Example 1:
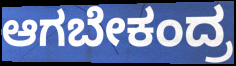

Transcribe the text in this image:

ಆಗಬೇಕಂದ್ರ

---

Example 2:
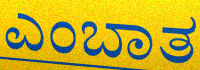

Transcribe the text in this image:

ಎಂಬಾತ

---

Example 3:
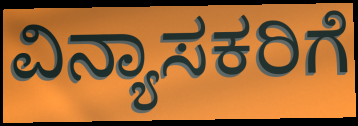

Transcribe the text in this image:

ವಿನ್ಯಾಸಕರಿಗೆ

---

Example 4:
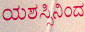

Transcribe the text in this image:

ಯಶಸ್ಸಿನಿಂದ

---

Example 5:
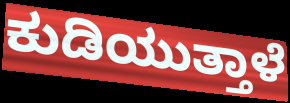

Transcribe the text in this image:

ಕುಡಿಯುತ್ತಾಳೆ